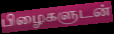
பிழைகளுடன்